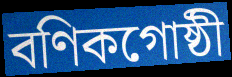
বণিকগোষ্ঠী